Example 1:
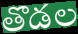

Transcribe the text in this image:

తొడల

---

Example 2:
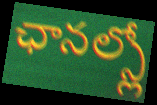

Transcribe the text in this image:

ఛానల్స్లో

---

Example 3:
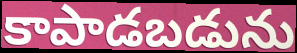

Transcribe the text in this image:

కాపాడబడును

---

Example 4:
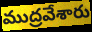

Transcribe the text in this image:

ముద్రవేశారు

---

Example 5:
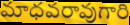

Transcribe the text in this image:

మాధవరావుగారి